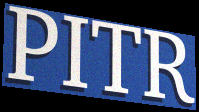
PITR